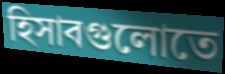
হিসাবগুলোতে